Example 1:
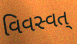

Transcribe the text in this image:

વિવસ્વત્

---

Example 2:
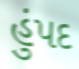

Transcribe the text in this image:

હુંપદ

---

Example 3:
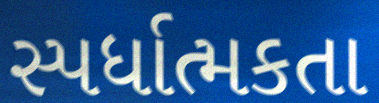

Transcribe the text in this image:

સ્પર્ધાત્મકતા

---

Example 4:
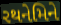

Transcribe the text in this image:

રથનેમિને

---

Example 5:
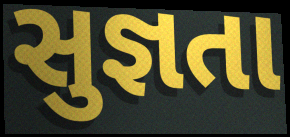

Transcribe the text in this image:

સુજ્ઞતા